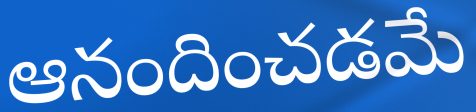
ఆనందించడమే